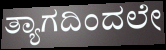
ತ್ಯಾಗದಿಂದಲೇ